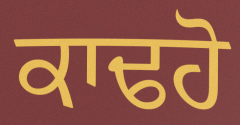
ਕਾਢਹੋ